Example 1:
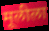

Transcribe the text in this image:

मूलीला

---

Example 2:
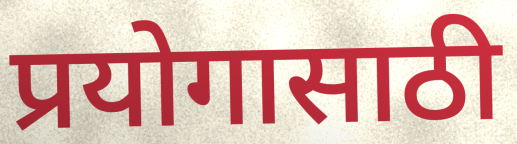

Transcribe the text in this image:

प्रयोगासाठी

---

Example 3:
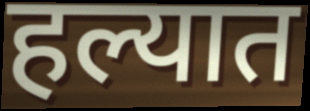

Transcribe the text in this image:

हल्यात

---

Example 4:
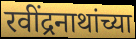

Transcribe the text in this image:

रवींद्रनाथांच्या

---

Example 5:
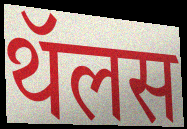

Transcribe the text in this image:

थॅलस